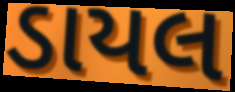
ડાયલ